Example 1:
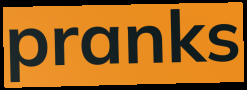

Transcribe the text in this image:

pranks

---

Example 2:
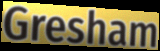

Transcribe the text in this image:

Gresham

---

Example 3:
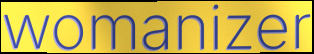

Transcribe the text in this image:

womanizer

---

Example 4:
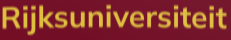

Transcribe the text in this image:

Rijksuniversiteit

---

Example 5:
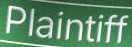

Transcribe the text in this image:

Plaintiff